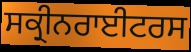
ਸਕ੍ਰੀਨਰਾਈਟਰਸ